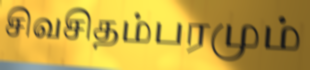
சிவசிதம்பரமும்